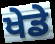
ਖੇਡੇ